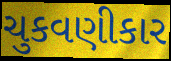
ચુકવણીકાર